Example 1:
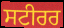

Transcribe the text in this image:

ਸਟੀਰਰ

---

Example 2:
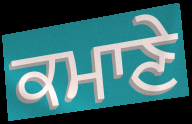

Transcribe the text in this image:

ਕਮਾਣੇ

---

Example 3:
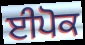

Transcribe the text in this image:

ਈਪੋਕ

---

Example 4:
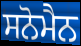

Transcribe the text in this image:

ਸਨੋਮੈਨ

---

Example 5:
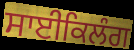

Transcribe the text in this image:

ਸਾਈਕਿਲੰਗ